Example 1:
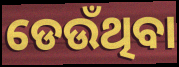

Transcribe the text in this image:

ଡେଉଁଥିବା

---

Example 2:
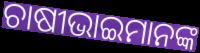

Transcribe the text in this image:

ଚାଷୀଭାଇମାନଙ୍କ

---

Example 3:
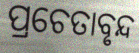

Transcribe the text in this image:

ପ୍ରଚେତାବୃନ୍ଦ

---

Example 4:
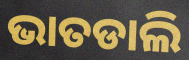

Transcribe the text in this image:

ଭାତଡାଲି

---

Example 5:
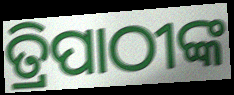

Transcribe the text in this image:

ତ୍ରିପାଠୀଙ୍କ